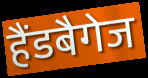
हैंडबैगेज